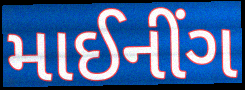
માઈનીંગ